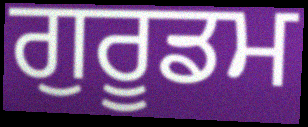
ਗੁਰੂਡਮ